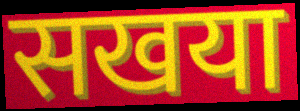
सखया